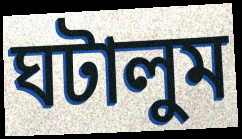
ঘটালুম